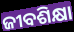
ଜୀବଶିକ୍ଷା